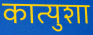
कात्युशा